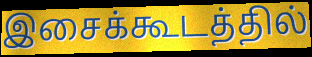
இசைக்கூடத்தில்